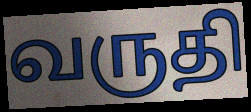
வருதி